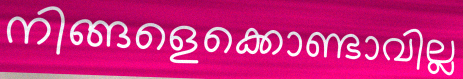
നിങ്ങളെക്കൊണ്ടാവില്ല